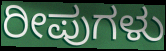
ರೀಪುಗಳು